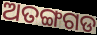
ଅତଙ୍ଗଗଡ